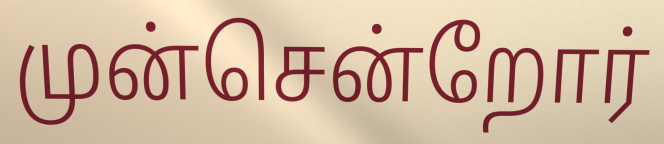
முன்சென்றோர்